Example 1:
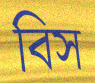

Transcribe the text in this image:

বিস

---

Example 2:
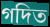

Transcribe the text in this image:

গদিত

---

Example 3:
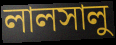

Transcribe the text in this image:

লালসালু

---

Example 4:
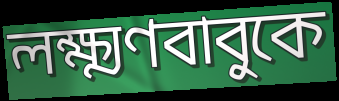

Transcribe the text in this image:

লক্ষ্মণবাবুকে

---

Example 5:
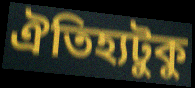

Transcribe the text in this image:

ঐতিহ্যটুকু